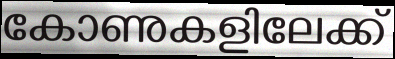
കോണുകളിലേക്ക്